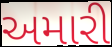
અમારી